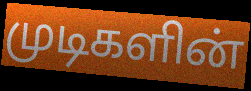
முடிகளின்